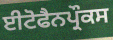
ਈਟੋਫੈਨਪ੍ਰੌਕਸ